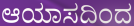
ಆಯಾಸದಿಂದ